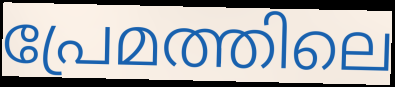
പ്രേമത്തിലെ